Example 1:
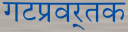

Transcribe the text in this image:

गटप्रवर्तक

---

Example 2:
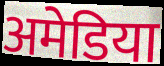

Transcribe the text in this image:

अमेडिया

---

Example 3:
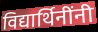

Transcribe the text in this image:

विद्यार्थिनींनी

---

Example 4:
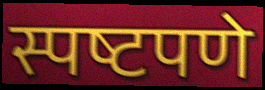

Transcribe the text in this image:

स्‍पष्‍टपणे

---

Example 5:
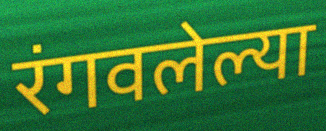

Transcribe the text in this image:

रंगवलेल्या